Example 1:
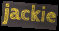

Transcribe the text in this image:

jackie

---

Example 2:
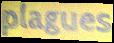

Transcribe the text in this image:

plagues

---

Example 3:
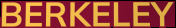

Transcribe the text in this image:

BERKELEY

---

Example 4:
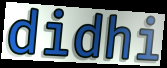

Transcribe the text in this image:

didhi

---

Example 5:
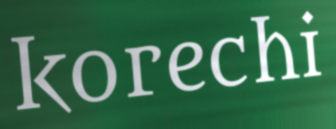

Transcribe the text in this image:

korechi